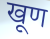
खूण